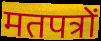
मतपत्रों